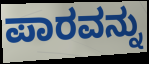
ಪಾರವನ್ನು